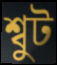
শ্বুট